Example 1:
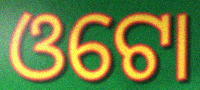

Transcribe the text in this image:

ଓଟୋ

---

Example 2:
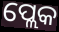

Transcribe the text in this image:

ପ୍ଲେକ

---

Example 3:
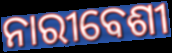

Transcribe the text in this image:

ନାରୀବେଶୀ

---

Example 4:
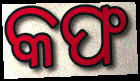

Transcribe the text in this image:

କଫ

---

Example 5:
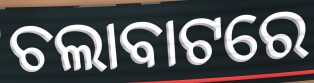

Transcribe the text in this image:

ଚଲାବାଟରେ